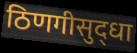
ठिणगीसुद्धा